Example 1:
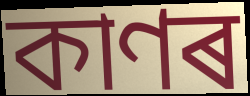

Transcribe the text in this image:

কাণৰ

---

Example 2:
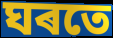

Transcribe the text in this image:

ঘৰতে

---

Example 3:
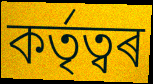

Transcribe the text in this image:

কৰ্তৃত্বৰ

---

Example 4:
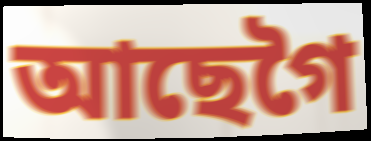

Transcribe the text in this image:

আছেগৈ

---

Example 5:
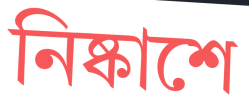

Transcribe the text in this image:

নিষ্কাশে